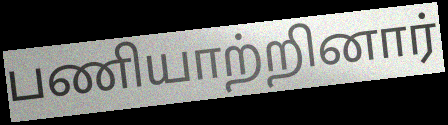
பணியாற்றினார்